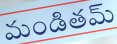
మండితమ్